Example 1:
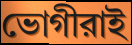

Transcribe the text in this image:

ভোগীরাই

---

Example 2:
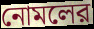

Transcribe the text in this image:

নোমলের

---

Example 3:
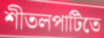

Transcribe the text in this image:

শীতলপাটিতে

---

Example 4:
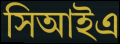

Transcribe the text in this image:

সিআইএ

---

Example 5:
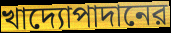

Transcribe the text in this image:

খাদ্যোপাদানের